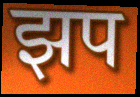
झप